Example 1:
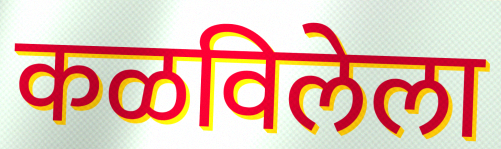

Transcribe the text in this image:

कळविलेला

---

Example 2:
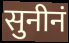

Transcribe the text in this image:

सुनीनं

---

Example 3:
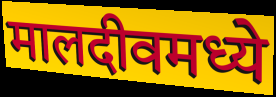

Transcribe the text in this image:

मालदीवमध्ये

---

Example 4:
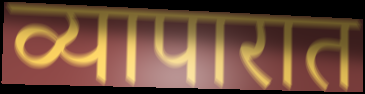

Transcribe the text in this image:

व्यापारात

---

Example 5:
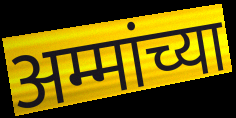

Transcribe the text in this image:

अम्मांच्या